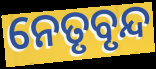
ନେତୃବୃନ୍ଦ